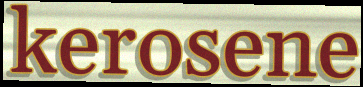
kerosene